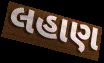
લહાણ